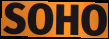
SOHO